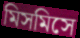
মিসমিসে